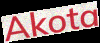
Akota